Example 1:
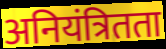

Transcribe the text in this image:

अनियंत्रितता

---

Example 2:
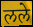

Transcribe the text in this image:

लले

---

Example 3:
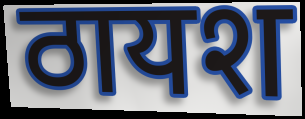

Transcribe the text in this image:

ठायश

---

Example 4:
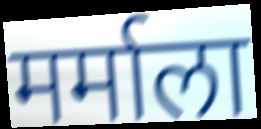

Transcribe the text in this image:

मर्माला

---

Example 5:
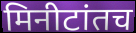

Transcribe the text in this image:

मिनीटांतच